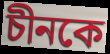
চীনকে